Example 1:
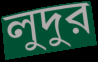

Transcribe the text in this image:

লুদুর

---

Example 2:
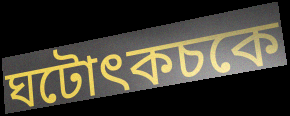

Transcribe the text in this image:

ঘটোৎকচকে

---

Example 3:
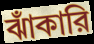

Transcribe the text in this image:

ঝাঁকারি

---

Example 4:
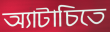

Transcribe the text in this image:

অ্যাটাচিতে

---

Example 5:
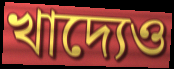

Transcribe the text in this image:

খাদ্যেও